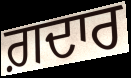
ਗ਼ਦਾਰ